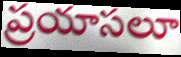
ప్రయాసలూ